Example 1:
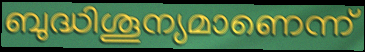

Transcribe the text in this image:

ബുദ്ധിശൂന്യമാണെന്ന്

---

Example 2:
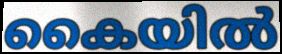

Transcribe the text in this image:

കൈയിൽ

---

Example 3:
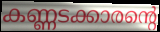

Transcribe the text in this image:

കണ്ണടക്കാരന്റെ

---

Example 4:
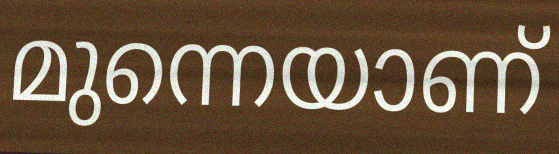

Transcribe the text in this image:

മുന്നെയാണ്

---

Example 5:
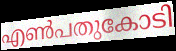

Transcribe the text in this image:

എൺപതുകോടി